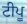
ਟੀਪੂ